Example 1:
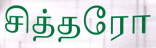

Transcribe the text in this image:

சித்தரோ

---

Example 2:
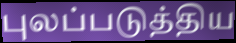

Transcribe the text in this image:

புலப்படுத்திய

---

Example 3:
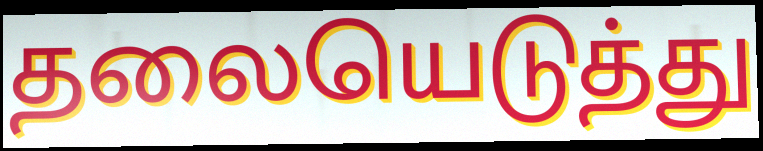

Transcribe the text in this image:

தலையெடுத்து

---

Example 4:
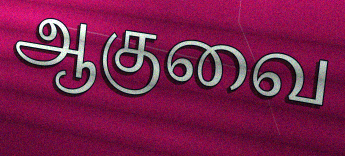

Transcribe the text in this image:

ஆகுவை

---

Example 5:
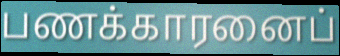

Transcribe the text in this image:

பணக்காரனைப்